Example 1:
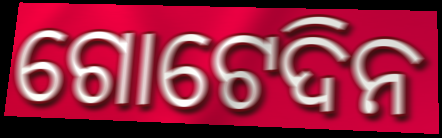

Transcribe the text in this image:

ଗୋଟେଦିନ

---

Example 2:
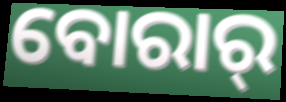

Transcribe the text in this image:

ବୋରାର୍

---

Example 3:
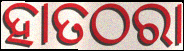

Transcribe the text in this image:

ହାତଠରା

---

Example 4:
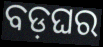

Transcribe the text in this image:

ବଡ଼ଘର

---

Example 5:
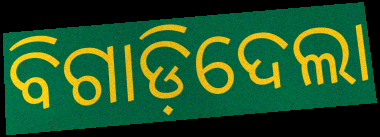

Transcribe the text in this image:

ବିଗାଡ଼ିଦେଲା